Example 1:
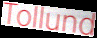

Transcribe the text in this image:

Tollund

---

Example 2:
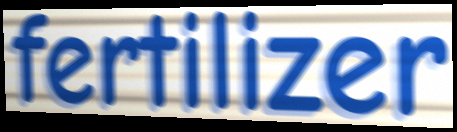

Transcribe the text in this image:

fertilizer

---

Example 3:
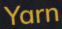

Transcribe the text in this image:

Yarn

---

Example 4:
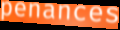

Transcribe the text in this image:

penances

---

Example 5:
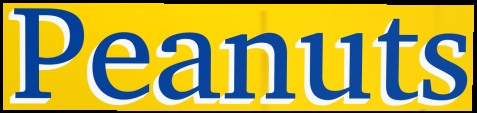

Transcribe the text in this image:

Peanuts